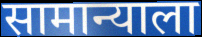
सामान्याला